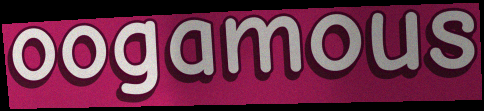
oogamous